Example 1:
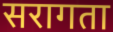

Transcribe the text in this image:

सरागता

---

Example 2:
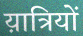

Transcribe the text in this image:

य़ात्रियों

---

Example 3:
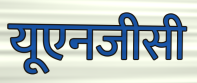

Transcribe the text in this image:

यूएनजीसी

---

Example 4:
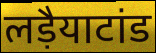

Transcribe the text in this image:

लड़ैयाटांड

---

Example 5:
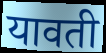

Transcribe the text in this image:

यावती